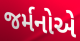
જર્મનોએ